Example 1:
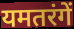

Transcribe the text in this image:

यमतरंगें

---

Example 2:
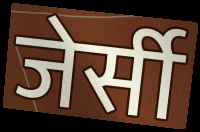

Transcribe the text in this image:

जेर्सी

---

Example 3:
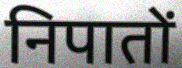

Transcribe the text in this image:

निपातों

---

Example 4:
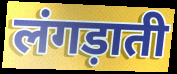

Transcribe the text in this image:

लंगड़ाती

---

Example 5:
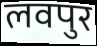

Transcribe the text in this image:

लवपुर